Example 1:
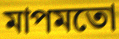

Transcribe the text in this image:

মাপমতো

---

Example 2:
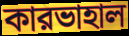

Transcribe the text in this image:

কারভাহাল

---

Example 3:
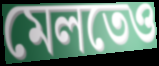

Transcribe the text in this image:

মেলতেও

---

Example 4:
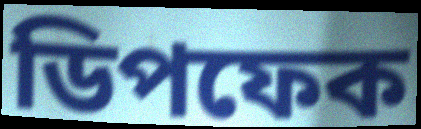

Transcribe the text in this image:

ডিপফেক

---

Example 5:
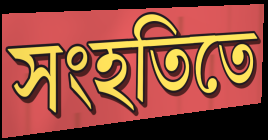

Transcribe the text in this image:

সংহতিতে